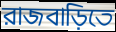
রাজবাড়িতে